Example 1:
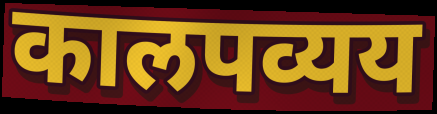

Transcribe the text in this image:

कालपव्यय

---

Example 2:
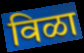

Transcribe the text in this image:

विळा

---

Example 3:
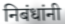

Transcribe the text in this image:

निबंधांनी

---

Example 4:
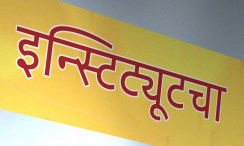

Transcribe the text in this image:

इन्स्टिट्यूटचा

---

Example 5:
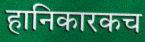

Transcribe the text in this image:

हानिकारकच